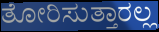
ತೋರಿಸುತ್ತಾರಲ್ಲ